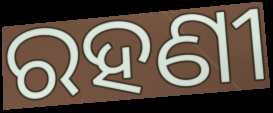
ରହଣୀ